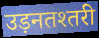
उड़नतश्तरी